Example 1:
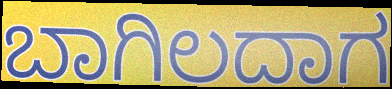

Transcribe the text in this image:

ಬಾಗಿಲದಾಗ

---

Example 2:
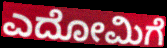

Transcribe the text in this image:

ಎದೋಮಿಗೆ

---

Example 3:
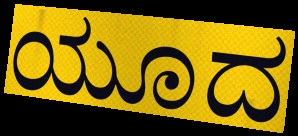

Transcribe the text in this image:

ಯೂದ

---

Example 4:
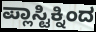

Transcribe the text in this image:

ಪ್ಲಾಸ್ಟಿಕ್ನಿಂದ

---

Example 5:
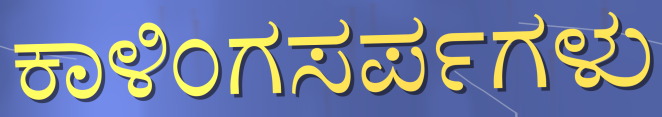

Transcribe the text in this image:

ಕಾಳಿಂಗಸರ್ಪಗಳು